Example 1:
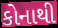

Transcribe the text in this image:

કોનાથી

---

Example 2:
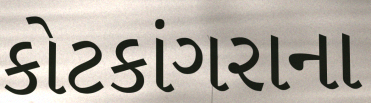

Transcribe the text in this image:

કોટકાંગરાના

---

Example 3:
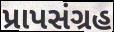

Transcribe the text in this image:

પ્રાપસંગ્રહ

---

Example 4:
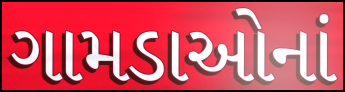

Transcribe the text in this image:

ગામડાઓનાં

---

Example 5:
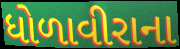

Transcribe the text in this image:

ધોળાવીરાના